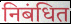
निबंधित